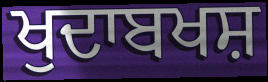
ਖੁਦਾਬਖਸ਼